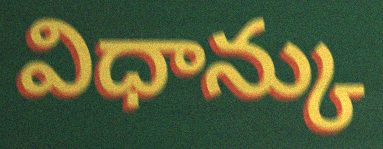
విధాన్కు